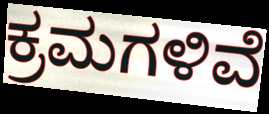
ಕ್ರಮಗಳಿವೆ